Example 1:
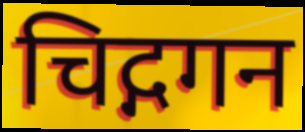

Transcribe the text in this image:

चिद्गगन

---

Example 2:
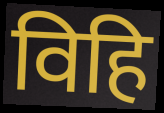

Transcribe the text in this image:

विहि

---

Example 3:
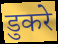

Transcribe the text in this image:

डुकरे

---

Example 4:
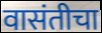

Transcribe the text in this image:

वासंतीचा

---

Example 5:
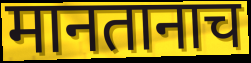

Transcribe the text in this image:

मानतानाच